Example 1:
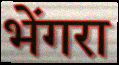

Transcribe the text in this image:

भेंगरा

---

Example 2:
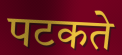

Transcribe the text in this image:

पटकते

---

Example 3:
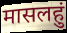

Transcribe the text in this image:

मासलहुं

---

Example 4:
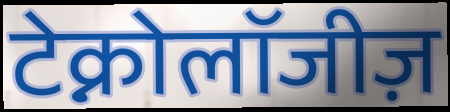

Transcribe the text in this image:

टेक्नोलॉजीज़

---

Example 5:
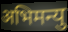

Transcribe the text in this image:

अभिमन्यु